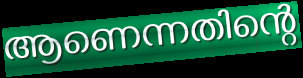
ആണെന്നതിന്റെ